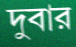
দুবার